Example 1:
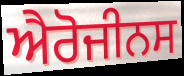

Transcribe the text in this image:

ਐਰੋਜੀਨਸ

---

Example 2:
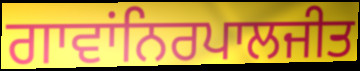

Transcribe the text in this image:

ਗਾਵਾਂਨਿਰਪਾਲਜੀਤ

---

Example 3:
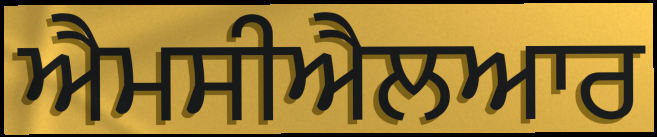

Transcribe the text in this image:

ਐਮਸੀਐਲਆਰ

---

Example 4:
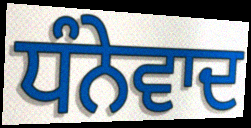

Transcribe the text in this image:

ਧੰਨੇਵਾਦ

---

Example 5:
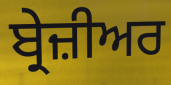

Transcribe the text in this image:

ਬ੍ਰੇਜ਼ੀਅਰ